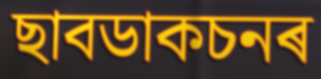
ছাবডাকচনৰ